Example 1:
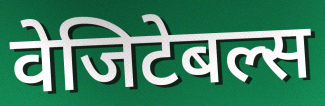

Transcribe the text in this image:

वेजिटेबल्स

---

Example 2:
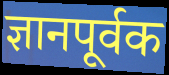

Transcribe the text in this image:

ज्ञानपूर्वक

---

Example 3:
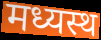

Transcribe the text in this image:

मध्यस्थ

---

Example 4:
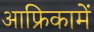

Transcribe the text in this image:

आफ्रिकामें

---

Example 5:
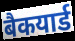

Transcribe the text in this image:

बैकयार्ड